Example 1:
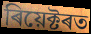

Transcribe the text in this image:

ৰিয়েক্টৰত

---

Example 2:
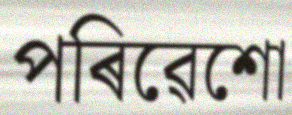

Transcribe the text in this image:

পৰিৱেশো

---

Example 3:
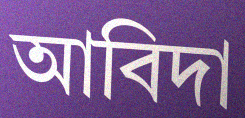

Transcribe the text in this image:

আবিদা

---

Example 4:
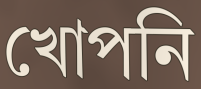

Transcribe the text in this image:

খোপনি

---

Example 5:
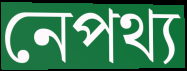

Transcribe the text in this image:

নেপথ্য